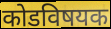
कोडविषयक